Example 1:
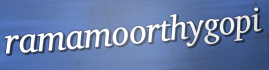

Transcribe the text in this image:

ramamoorthygopi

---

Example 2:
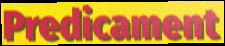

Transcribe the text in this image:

Predicament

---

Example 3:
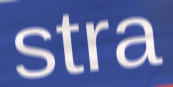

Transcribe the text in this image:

stra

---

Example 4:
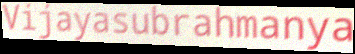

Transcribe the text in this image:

Vijayasubrahmanya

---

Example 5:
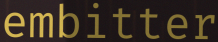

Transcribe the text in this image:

embitter